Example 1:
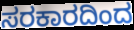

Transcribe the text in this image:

ಸರಕಾರದಿಂದ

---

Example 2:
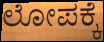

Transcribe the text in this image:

ಲೋಪಕ್ಕೆ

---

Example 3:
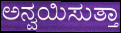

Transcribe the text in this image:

ಅನ್ವಯಿಸುತ್ತಾ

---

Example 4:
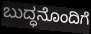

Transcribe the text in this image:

ಬುದ್ಧನೊಂದಿಗೆ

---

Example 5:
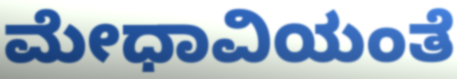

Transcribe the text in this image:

ಮೇಧಾವಿಯಂತೆ